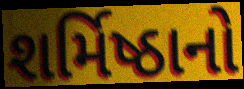
શર્મિષ્ઠાનો